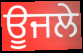
ਊਜਲੇ